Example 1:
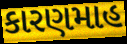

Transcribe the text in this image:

કારણમાહ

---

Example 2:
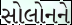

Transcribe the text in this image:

સોલોનને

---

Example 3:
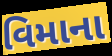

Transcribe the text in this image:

વિમાના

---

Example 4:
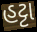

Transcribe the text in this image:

હટ્ટા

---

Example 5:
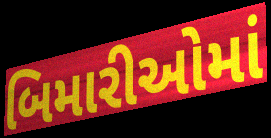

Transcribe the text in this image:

બિમારીઓમાં